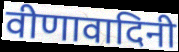
वीणावादिनी